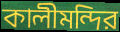
কালীমন্দির